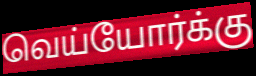
வெய்யோர்க்கு